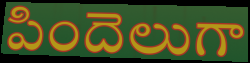
పిందెలుగా